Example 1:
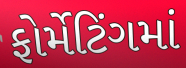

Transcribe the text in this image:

ફોર્મેટિંગમાં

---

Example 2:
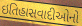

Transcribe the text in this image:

ઇતિહાસવાદીઓનો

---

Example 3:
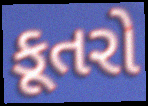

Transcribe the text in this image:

કૂતરો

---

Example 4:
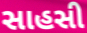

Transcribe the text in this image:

સાહસી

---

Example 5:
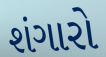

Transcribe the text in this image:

શંગારો